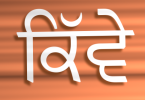
ਕਿੱਵੇ